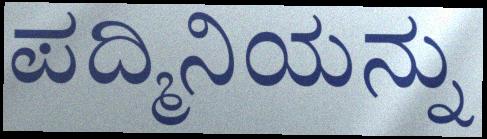
ಪದ್ಮಿನಿಯನ್ನು